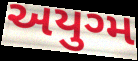
અયુગ્મ